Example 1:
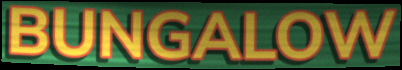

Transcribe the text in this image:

BUNGALOW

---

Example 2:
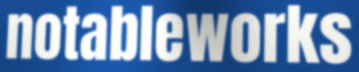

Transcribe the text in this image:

notableworks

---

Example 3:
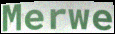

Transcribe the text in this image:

Merwe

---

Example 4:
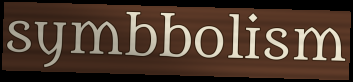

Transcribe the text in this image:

symbbolism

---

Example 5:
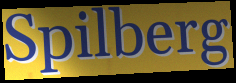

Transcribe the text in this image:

Spilberg